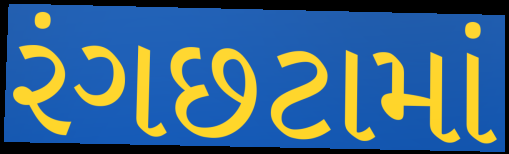
રંગછટામાં